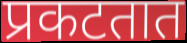
प्रकटतात